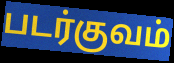
படர்குவம்